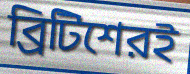
ব্রিটিশেরই